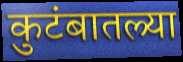
कुटंबातल्या